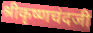
श्रीकृष्णचंदजी